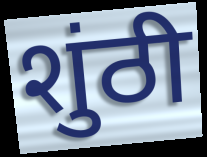
शुंठी